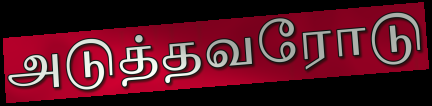
அடுத்தவரோடு